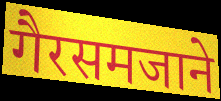
गैरसमजाने